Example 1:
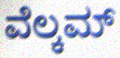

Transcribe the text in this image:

ವೆಲ್ಕಮ್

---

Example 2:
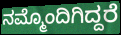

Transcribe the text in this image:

ನಮ್ಮೊಂದಿಗಿದ್ದರೆ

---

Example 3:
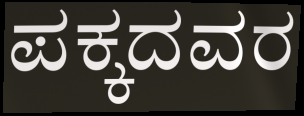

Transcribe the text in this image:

ಪಕ್ಕದವರ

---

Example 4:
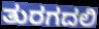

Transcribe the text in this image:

ತುರಗದಲಿ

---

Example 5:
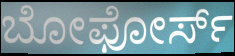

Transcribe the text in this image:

ಬೋಫೋರ್ಸ್